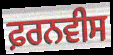
ਫ਼ਰਨਵੀਸ